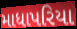
માધાપરિયા